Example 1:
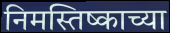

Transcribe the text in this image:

निमस्तिष्काच्या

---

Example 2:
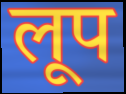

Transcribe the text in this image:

लूप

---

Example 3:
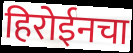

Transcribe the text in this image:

हिरोईनचा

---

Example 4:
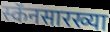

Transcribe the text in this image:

स्कॅनसारख्या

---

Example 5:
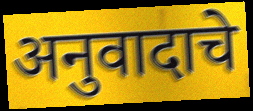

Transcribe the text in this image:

अनुवादाचे